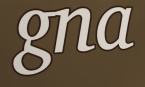
gna